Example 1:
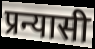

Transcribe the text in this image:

प्रन्यासी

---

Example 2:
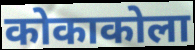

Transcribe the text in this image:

कोकाकोला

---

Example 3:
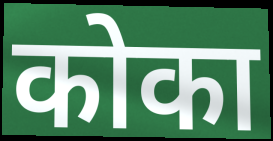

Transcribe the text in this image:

कोका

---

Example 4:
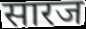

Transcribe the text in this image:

सारज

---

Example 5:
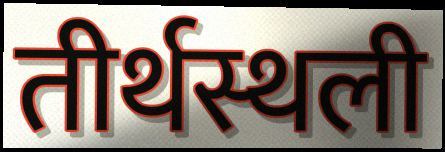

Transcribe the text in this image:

तीर्थस्थली